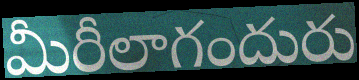
మీరీలాగందురు